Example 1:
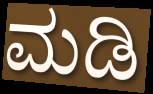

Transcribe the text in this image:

ಮಡಿ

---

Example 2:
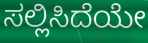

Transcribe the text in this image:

ಸಲ್ಲಿಸಿದೆಯೇ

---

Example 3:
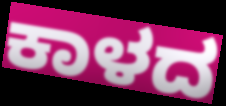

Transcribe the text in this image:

ಕಾಳದ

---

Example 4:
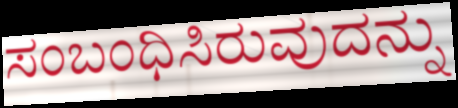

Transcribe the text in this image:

ಸಂಬಂಧಿಸಿರುವುದನ್ನು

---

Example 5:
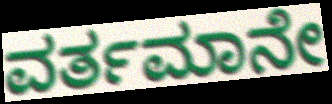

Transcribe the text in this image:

ವರ್ತಮಾನೇ